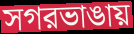
সগরভাঙায়